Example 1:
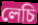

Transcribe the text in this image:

লেচি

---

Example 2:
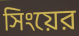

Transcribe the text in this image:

সিংয়ের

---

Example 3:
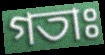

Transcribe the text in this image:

গতাঃ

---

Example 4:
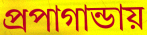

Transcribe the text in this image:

প্রপাগান্ডায়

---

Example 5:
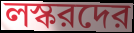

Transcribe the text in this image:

লস্করদের